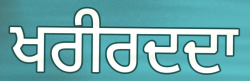
ਖਰੀਰਦਦਾ